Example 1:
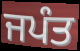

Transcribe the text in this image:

ਜਪੰਤ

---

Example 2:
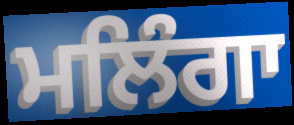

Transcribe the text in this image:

ਮਲਿੰਗਾ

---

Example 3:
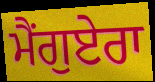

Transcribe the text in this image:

ਮੈਂਗੁਏਰਾ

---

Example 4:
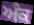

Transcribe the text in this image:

ਅੰਕ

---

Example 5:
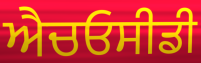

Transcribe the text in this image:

ਐਚਓਸੀਡੀ